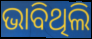
ଭାବିଥିଲି